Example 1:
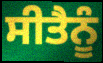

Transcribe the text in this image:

ਸੀਤੈਨੂੰ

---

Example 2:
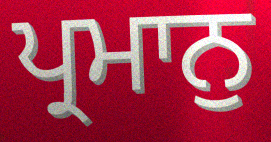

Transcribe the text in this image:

ਪ੍ਰਮਾਨੁ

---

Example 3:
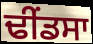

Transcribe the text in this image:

ਢੀੰਂਡਸਾ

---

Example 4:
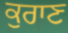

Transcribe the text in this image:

ਕੁਰਾਣ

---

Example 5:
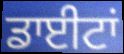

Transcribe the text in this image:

ਡਾਈਟਾਂ